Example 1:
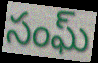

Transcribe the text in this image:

సంఘ్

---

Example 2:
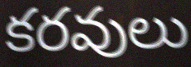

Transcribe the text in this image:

కరవులు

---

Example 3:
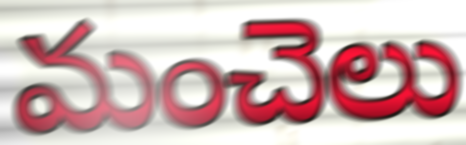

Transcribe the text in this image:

మంచెలు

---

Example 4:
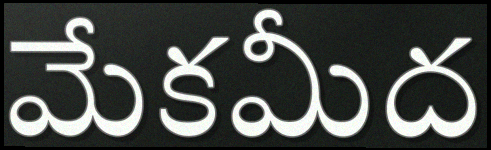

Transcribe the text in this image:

మేకమీద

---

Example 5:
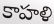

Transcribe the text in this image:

కాహళి